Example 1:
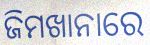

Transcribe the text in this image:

ଜିମଖାନାରେ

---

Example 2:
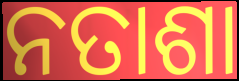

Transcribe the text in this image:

ନତାଶା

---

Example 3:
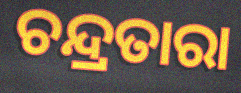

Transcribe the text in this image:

ଚନ୍ଦ୍ରତାରା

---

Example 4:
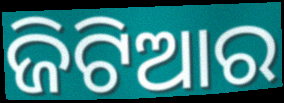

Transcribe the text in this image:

ଜିଟିଆର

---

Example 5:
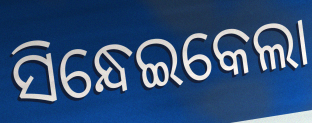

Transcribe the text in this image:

ସିନ୍ଧେଇକେଲା